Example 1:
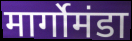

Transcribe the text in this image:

मार्गोमंडा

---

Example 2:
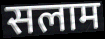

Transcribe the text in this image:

सलाम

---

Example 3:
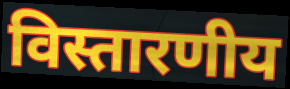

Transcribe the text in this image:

विस्तारणीय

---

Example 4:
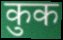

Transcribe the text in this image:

कुक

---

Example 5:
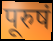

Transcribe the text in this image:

पूरुषं